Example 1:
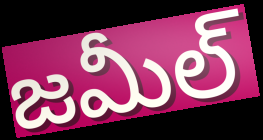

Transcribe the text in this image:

జమీల్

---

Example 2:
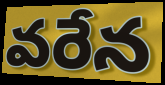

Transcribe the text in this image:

వరేన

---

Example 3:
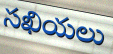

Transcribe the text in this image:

సఖియలు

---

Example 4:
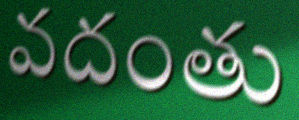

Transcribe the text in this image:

వదంతు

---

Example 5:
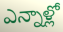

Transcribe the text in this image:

ఎన్నాళ్లో